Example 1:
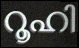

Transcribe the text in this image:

റൂഹി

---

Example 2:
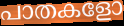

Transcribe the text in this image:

പാതകളോ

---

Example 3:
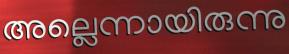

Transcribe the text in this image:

അല്ലെന്നായിരുന്നു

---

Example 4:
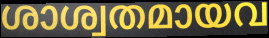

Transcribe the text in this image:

ശാശ്വതമായവ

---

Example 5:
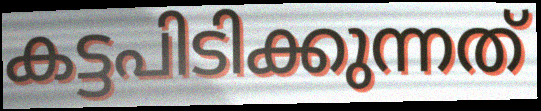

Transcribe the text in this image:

കട്ടപിടിക്കുന്നത്